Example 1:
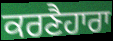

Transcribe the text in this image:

ਕਰਣੈਹਾਰਾ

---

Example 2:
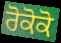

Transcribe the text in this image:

ਰੋਕੋਕੋ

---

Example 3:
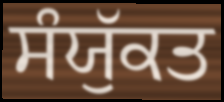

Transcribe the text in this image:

ਸੰਯੁੱਕਤ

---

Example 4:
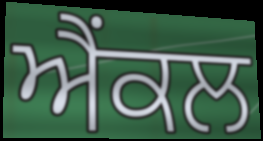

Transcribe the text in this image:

ਐਂਕਲ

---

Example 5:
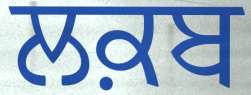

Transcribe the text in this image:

ਲਕ਼ਬ